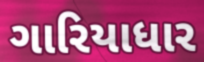
ગારિયાધાર